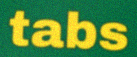
tabs